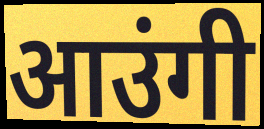
आउंगी